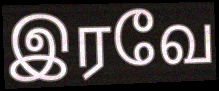
இரவே